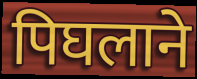
पिघलाने